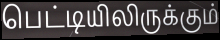
பெட்டியிலிருக்கும்